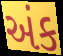
અંક